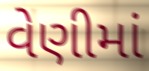
વેણીમાં